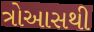
ત્રોઆસથી